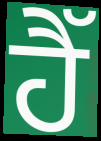
ਹੈੱ